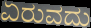
ಏರುವದು